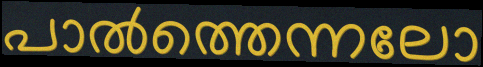
പാൽത്തെന്നലോ